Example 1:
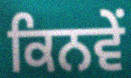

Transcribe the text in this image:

ਕਿਨਵੇਂ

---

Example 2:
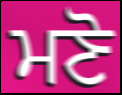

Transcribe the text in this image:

ਮਣੋ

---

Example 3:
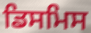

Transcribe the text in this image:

ਡਿਸਮਿਸ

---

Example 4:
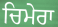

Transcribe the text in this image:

ਚਿਮੇਰਾ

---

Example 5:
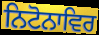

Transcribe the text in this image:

ਨਿਟੋਨਾਵਿਰ